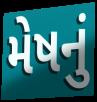
મેષનું